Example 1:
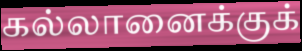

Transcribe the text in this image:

கல்லானைக்குக்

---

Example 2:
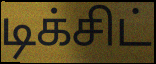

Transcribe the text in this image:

டிக்சிட்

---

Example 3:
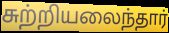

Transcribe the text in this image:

சுற்றியலைந்தார்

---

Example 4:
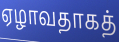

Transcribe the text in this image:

ஏழாவதாகத்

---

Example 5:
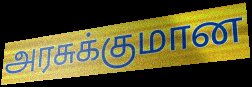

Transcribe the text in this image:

அரசுக்குமான